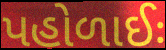
પહોળાઈઃ